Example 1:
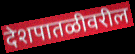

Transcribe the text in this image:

देशपातळीवरील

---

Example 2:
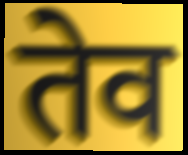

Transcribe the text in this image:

तेव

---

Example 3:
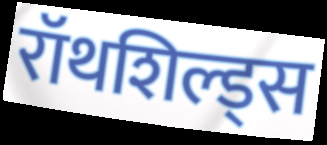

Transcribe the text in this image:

रॉथशिल्ड्स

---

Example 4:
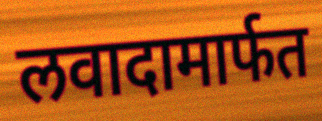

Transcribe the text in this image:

लवादामार्फत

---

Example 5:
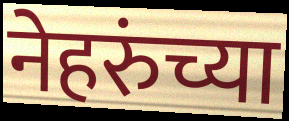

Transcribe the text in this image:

नेहरुंच्या